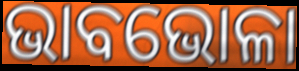
ଭାବଭୋଳା